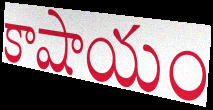
కాషాయం